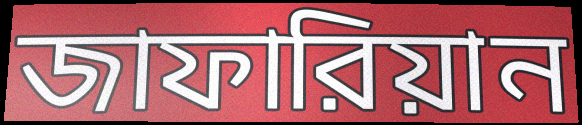
জাফারিয়ান